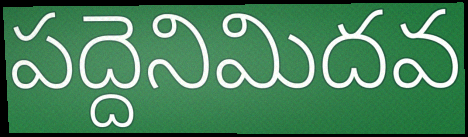
పద్దెనిమిదవ